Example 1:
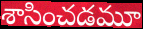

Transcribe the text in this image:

శాసించడమూ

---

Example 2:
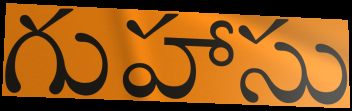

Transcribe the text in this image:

గుహాసు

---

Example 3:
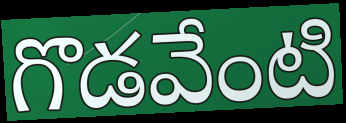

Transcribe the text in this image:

గొడవేంటి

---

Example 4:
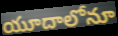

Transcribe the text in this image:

యూదాలోనూ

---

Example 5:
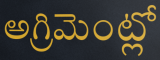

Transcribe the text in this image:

అగ్రిమెంట్లో